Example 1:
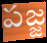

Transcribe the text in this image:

పజ్జ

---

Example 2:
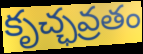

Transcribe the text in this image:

కృచ్ఛవ్రతం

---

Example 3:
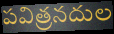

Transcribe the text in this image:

పవిత్రనదుల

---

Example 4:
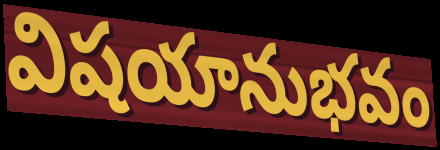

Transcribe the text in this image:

విషయానుభవం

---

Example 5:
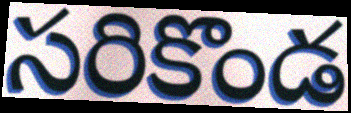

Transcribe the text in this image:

సరికొండ